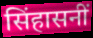
सिंहासनीं